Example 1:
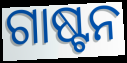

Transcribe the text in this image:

ଗାଷ୍ଟନ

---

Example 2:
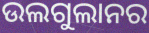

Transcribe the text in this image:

ଉଲଗୁଲାନର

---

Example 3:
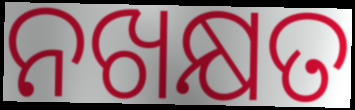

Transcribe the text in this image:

ନଖକ୍ଷତ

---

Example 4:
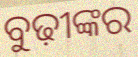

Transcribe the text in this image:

ବୁଢ଼ୀଙ୍କର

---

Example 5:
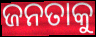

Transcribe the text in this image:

ଜନତାକୁ